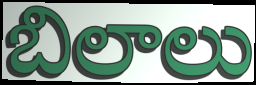
బిలాలు